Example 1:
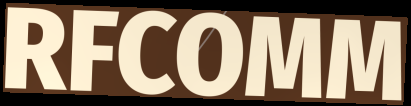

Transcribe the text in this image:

RFCOMM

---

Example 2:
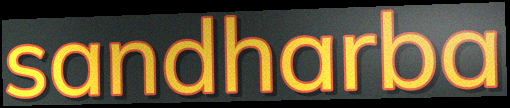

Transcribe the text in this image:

sandharba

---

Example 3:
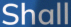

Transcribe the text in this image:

Shall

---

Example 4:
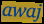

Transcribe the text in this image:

awaj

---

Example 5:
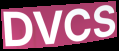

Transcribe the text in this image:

DVCS